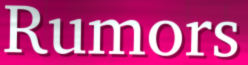
Rumors